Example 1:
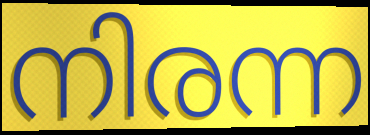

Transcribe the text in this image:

നിരന്ന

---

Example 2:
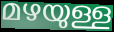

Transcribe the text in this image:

മഴയുള്ള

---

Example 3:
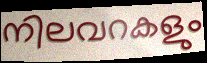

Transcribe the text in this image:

നിലവറകളും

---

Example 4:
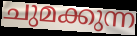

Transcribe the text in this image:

ചുമക്കുന്ന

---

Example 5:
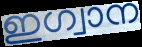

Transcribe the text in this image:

ഇഗ്വാന